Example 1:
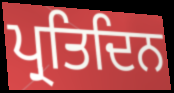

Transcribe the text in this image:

ਪ੍ਰਤਿਦਿਨ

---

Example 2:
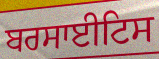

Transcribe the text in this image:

ਬਰਸਾਈਟਿਸ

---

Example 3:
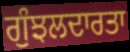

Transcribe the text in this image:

ਗੁੰਝਲਦਾਰਤਾ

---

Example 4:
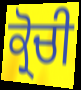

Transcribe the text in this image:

ਕ੍ਰੋਚੀ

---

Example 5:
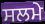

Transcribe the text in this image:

ਸਲਮੇ